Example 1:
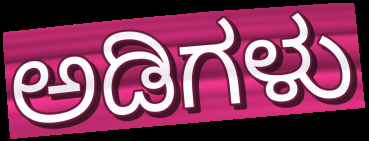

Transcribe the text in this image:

ಅಡಿಗಳು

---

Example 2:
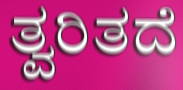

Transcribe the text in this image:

ತ್ವರಿತದೆ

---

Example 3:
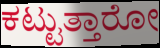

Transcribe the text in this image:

ಕಟ್ಟುತ್ತಾರೋ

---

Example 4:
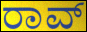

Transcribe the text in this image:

ರಾವ್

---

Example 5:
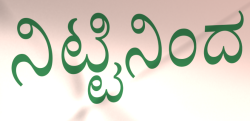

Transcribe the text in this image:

ನಿಟ್ಟಿನಿಂದ